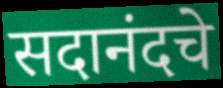
सदानंदचे